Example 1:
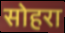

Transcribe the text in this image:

सोहरा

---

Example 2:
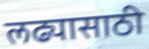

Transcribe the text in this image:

लढ्यासाठी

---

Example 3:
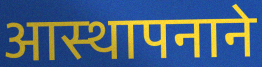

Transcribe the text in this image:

आस्थापनाने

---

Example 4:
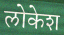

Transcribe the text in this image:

लोकेश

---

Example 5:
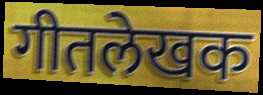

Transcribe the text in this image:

गीतलेखक